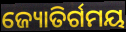
ଜ୍ୟୋତିର୍ଗମୟ